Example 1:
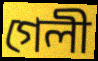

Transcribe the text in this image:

গেলী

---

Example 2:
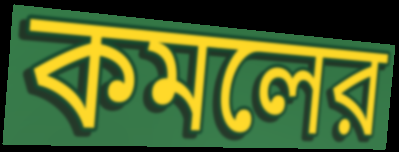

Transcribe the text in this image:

কমলের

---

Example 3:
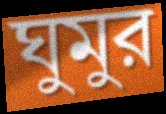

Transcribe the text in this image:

ঘুমুর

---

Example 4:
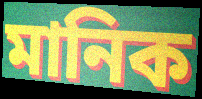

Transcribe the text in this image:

মানিক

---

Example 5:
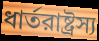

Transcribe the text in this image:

ধার্তরাষ্ট্রস্য